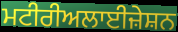
ਮਟੀਰੀਅਲਾਈਜ਼ੇਸ਼ਨ